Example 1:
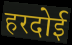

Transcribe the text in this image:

हरदोई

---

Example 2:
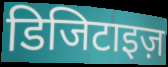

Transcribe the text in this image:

डिजिटाइज़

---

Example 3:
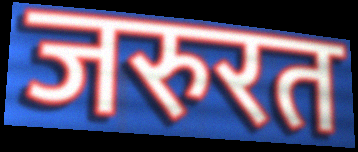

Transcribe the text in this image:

जरुरत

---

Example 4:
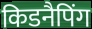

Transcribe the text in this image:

किडनैपिंग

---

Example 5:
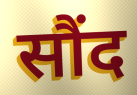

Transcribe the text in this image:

सौंद